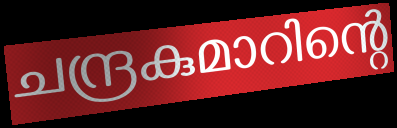
ചന്ദ്രകുമാറിന്റെ